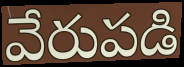
వేరుపడి